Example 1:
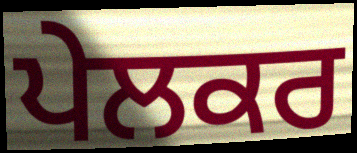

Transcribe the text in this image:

ਪੇਲਕਰ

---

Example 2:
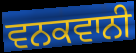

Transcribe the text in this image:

ਵਨਕਵਾਨੀ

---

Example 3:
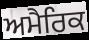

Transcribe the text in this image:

ਅਮੈਰਿਕ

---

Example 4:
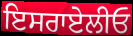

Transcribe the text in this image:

ਇਸਰਾਏਲੀਓ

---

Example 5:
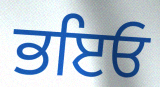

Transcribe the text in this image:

ਭਇਓ